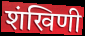
शंखिणी